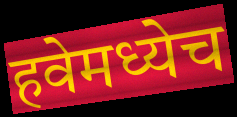
हवेमध्येच